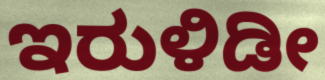
ಇರುಳಿಡೀ